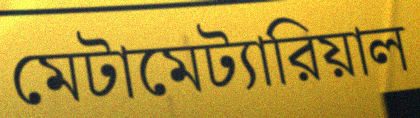
মেটামেট্যারিয়াল